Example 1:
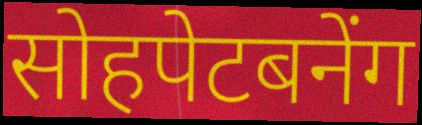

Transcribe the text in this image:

सोहपेटबनेंग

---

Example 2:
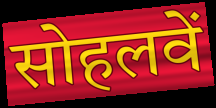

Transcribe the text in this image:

सोहलवें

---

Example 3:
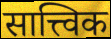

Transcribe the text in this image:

सात्त्विक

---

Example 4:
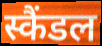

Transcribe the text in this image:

स्कैंडल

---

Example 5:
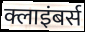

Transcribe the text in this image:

क्लाइंबर्स